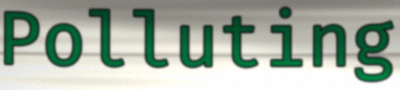
Polluting